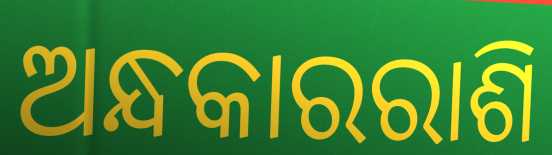
ଅନ୍ଧକାରରାଶି